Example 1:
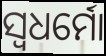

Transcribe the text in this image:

ସ୍ୱଧର୍ମୋ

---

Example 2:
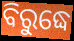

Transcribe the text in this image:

ବିରୁଦ୍ଧେ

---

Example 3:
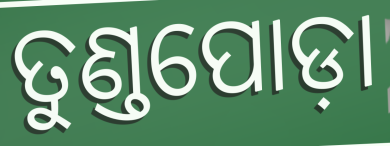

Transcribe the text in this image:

ତୁଣ୍ଡପୋଡ଼ା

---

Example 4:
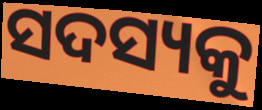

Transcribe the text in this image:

ସଦସ୍ୟକୁ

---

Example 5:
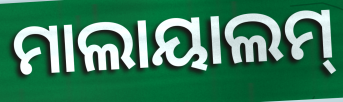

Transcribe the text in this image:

ମାଲାୟାଲମ୍